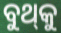
ବୁଥ୍‌କୁ